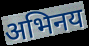
अभिनय